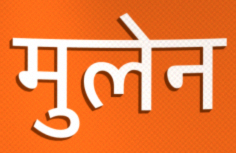
मुलेन